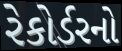
રેકોર્ડરનો